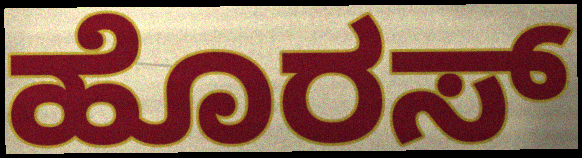
ಹೊರಸ್